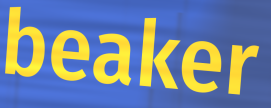
beaker